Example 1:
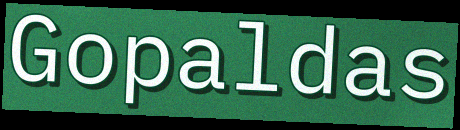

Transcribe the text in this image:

Gopaldas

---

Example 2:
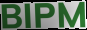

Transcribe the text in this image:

BIPM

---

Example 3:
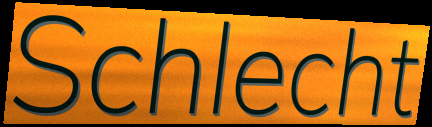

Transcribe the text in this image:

Schlecht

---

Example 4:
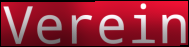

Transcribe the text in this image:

Verein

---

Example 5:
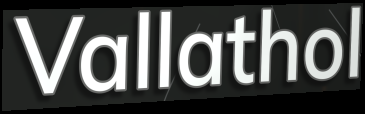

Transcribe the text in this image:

Vallathol